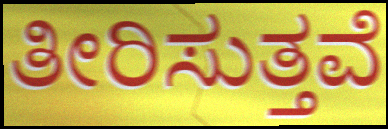
ತೀರಿಸುತ್ತವೆ